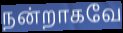
நன்றாகவே